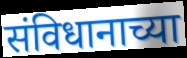
संविधानाच्या